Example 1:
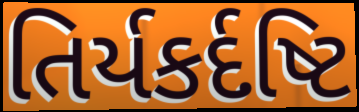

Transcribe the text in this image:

તિર્યકર્દષ્ટિ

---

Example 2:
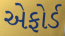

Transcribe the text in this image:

એફોર્ડ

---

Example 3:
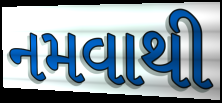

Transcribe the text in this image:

નમવાથી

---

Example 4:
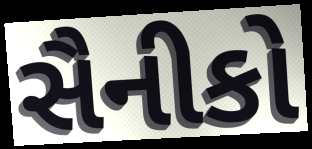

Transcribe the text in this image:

સૈનીકો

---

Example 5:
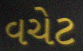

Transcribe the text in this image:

વચેટ